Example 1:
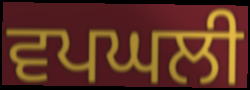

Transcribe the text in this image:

ਵਪਘਲੀ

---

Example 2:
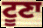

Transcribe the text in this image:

ਟੂਣਾ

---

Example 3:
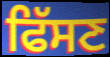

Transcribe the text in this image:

ਫਿੱਸਣ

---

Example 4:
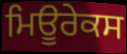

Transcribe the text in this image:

ਮਿਊਰੇਕਸ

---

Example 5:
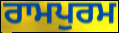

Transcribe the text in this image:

ਰਾਮਪੁਰਮ